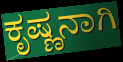
ಕೃಷ್ಣನಾಗಿ